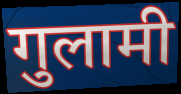
गुलामी